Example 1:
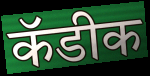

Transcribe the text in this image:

कॅडीक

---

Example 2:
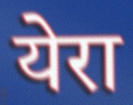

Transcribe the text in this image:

येरा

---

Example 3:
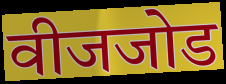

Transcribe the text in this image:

वीजजोड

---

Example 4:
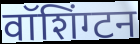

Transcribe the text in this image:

वॉशिंग्टन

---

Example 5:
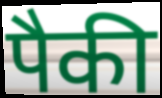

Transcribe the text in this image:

पैकी